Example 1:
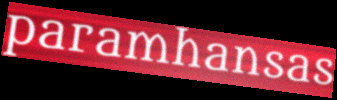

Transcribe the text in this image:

paramhansas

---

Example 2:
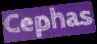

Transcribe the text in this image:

Cephas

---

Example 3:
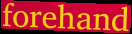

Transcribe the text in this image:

forehand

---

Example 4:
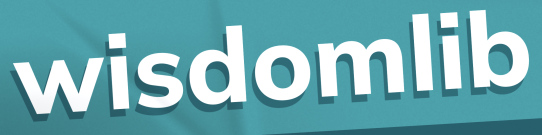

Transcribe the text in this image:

wisdomlib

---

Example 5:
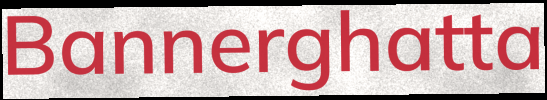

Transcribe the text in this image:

Bannerghatta